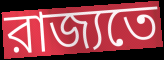
রাজ্যতে